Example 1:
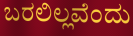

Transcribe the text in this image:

ಬರಲಿಲ್ಲವೆಂದು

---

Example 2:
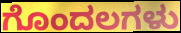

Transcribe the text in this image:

ಗೊಂದಲಗಳು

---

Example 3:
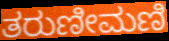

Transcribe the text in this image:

ತರುಣೀಮಣಿ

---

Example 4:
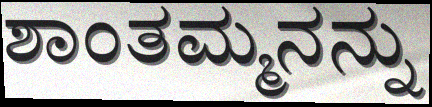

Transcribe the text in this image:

ಶಾಂತಮ್ಮನನ್ನು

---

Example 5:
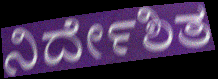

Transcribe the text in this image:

ನಿರ್ದೇಶಿತ